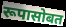
रूपासोबत